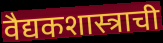
वैद्यकशास्त्राची